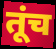
तूंच